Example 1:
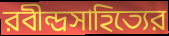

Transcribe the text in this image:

রবীন্দ্রসাহিত্যের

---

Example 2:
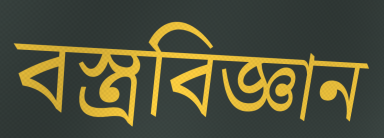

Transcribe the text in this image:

বস্ত্রবিজ্ঞান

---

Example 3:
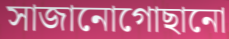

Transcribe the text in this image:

সাজানোগোছানো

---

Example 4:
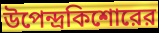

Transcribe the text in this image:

উপেন্দ্রকিশোরের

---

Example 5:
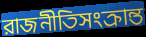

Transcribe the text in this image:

রাজনীতিসংক্রান্ত